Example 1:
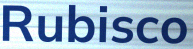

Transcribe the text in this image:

Rubisco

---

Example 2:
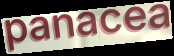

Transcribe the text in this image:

panacea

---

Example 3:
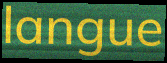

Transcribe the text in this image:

langue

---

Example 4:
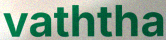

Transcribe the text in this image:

vaththa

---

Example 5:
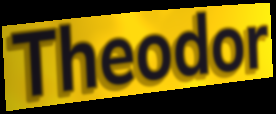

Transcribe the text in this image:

Theodor